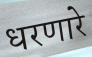
धरणारे